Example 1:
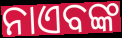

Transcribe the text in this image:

ନାଏବଙ୍କ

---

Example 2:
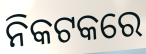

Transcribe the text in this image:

ନିକଟକରେ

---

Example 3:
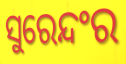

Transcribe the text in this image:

ସୁରେନ୍ଦଂର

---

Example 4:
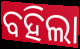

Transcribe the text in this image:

ବହିଲା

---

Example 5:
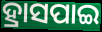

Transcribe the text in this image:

ହ୍ରାସପାଇ